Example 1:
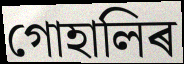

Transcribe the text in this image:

গোহালিৰ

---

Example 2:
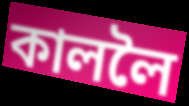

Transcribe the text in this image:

কাললৈ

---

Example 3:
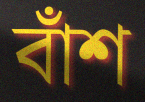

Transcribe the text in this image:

বাঁশ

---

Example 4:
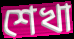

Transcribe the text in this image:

শেখা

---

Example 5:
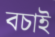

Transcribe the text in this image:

বচাই